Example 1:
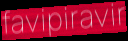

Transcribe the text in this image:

favipiravir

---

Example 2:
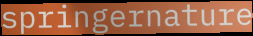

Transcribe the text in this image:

springernature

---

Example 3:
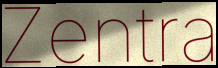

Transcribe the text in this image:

Zentra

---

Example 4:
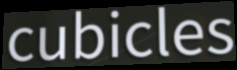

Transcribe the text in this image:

cubicles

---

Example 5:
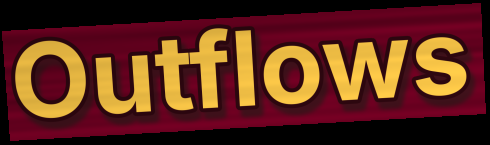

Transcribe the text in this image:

Outflows